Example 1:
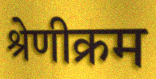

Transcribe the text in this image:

श्रेणीक्रम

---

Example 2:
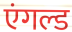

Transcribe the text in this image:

एंगल्ड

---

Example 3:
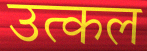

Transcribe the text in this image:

उत्कल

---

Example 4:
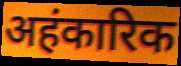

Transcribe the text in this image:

अहंकारिक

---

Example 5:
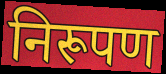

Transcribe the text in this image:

निरूपण